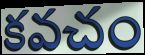
కవచం